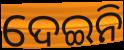
ଦେଇନି